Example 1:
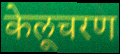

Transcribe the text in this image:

केलूचरण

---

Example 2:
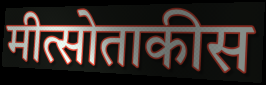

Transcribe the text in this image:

मीत्सोताकीस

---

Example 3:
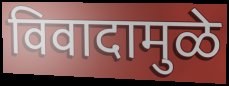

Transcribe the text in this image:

विवादामुळे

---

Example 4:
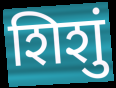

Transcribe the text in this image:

शिशुं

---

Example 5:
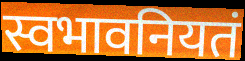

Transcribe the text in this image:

स्वभावनियतं